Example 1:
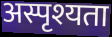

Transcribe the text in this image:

अस्पृश्यता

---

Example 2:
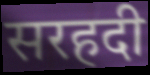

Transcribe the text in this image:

सरहदी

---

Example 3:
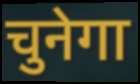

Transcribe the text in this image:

चुनेगा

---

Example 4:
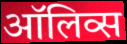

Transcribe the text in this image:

ऑलिव्स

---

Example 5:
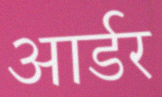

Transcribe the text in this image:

आर्डर